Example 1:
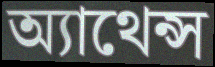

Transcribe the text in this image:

অ্যাথেন্স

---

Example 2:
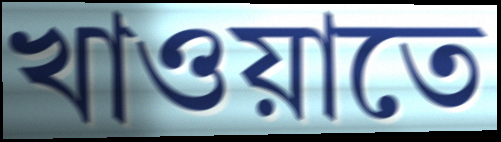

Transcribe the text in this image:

খাওয়াতে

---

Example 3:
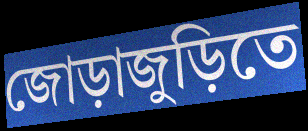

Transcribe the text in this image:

জোড়াজুড়িতে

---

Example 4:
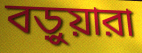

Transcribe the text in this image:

বড়ুয়ারা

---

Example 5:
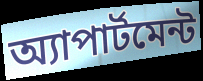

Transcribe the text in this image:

অ্যাপার্টমেন্ট